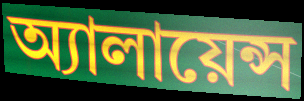
অ্যালায়েন্স